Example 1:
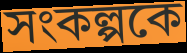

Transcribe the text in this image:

সংকল্পকে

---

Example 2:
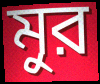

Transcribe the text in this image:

মুর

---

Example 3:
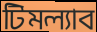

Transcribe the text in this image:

টিমল্যাব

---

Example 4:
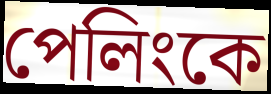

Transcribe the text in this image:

পেলিংকে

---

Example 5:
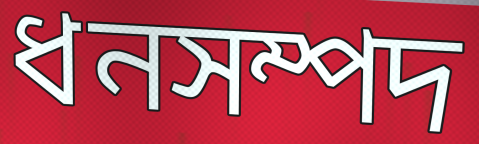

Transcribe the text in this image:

ধনসম্পদ